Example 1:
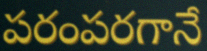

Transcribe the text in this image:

పరంపరగానే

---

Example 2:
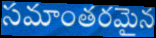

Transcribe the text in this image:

సమాంతరమైన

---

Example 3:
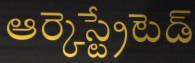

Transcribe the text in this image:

ఆర్కెస్ట్రేటెడ్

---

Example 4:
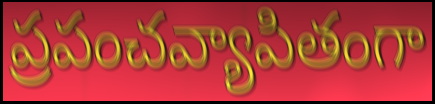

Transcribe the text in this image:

ప్రపంచవ్యాపితంగా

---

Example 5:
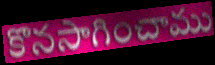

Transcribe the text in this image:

కొనసాగించాము